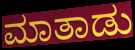
ಮಾತಾಡು